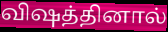
விஷத்தினால்